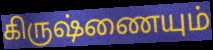
கிருஷ்ணையும்